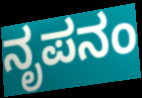
ನೃಪನಂ